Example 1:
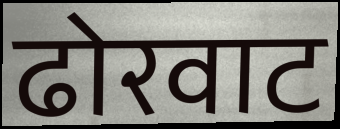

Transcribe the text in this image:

ढोरवाट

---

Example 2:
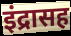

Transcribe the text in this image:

इंद्रासह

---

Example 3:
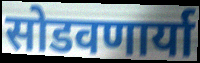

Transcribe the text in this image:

सोडवणार्या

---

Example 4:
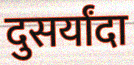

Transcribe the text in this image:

दुसर्यांदा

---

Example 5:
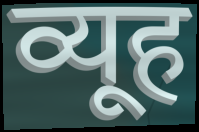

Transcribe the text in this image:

व्यूह